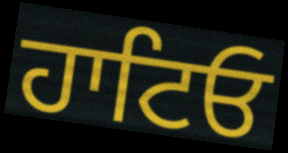
ਹਾਟਿਓ